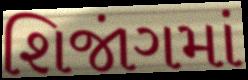
શિજાંગમાં